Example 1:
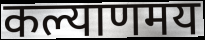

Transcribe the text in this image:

कल्याणमय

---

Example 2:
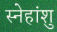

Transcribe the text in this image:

स्नेहांशु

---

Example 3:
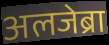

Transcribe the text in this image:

अलजेब्रा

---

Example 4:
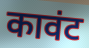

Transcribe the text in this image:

कावंट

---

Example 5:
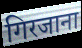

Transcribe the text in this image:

गिरजाना